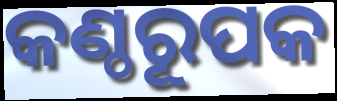
କଣ୍ଠରୂପକ